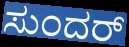
ಸುಂದರ್